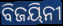
ବିଜୟିନୀ